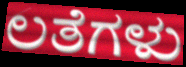
ಲತೆಗಳು